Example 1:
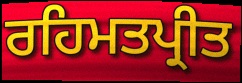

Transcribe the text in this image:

ਰਹਿਮਤਪ੍ਰੀਤ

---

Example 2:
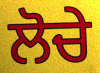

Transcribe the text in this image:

ਲੋਚੇ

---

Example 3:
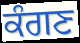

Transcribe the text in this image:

ਕੰਗਣ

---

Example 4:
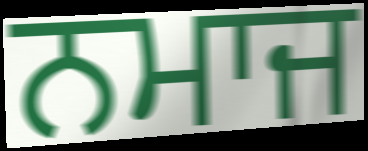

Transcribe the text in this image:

ਨਮਾਜ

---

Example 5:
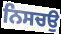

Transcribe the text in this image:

ਨਿਸਚਉ